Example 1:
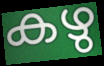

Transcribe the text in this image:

കഴു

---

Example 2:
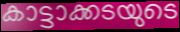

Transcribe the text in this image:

കാട്ടാക്കടയുടെ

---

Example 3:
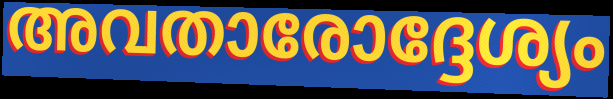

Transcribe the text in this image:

അവതാരോദ്ദേശ്യം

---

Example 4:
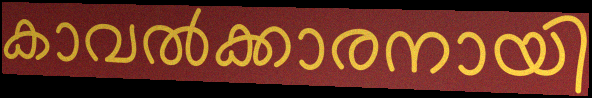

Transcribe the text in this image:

കാവൽക്കാരനായി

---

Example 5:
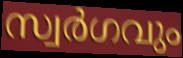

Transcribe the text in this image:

സ്വർഗവും